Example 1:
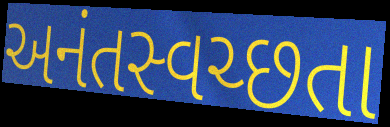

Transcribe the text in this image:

અનંતસ્વચ્છતા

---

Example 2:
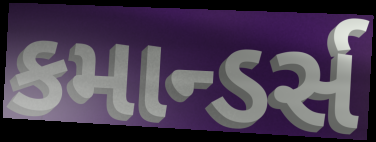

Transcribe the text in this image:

કમાન્ડર્સ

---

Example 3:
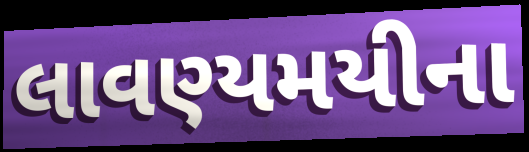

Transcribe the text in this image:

લાવણ્યમયીના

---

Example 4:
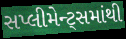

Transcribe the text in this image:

સપ્લીમેન્ટ્સમાંથી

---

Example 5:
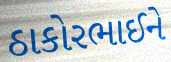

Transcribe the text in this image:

ઠાકોરભાઈને